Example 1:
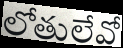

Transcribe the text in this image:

లోతులేవో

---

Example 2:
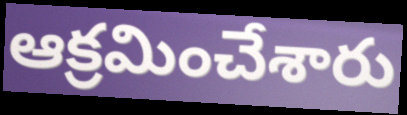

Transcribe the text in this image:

ఆక్రమించేశారు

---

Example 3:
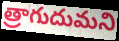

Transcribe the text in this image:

త్రాగుదుమని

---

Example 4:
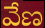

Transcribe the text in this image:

వేణ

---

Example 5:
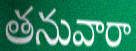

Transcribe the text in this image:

తనువారా